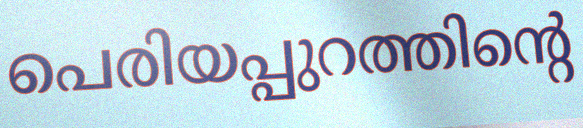
പെരിയപ്പുറത്തിന്റെ